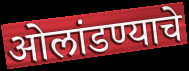
ओलांडण्याचे